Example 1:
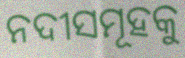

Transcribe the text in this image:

ନଦୀସମୂହକୁ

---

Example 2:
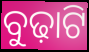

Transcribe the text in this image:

ବୁଢ଼ାଟି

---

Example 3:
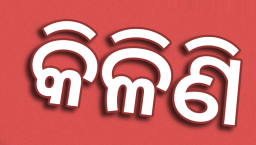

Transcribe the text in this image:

କିଳିଣି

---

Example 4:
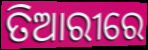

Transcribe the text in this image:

ତିଆରୀରେ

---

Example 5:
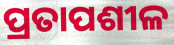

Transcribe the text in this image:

ପ୍ରତାପଶୀଳ